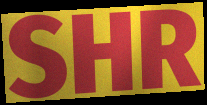
SHR